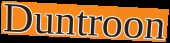
Duntroon